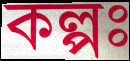
কল্পঃ